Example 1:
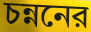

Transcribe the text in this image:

চন্ননের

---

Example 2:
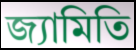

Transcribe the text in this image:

জ্যামিতি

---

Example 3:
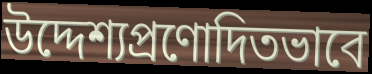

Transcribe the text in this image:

উদ্দেশ্যপ্রণোদিতভাবে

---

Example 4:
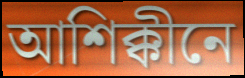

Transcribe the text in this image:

আশিক্কীনে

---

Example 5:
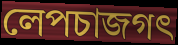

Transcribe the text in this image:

লেপচাজগৎ